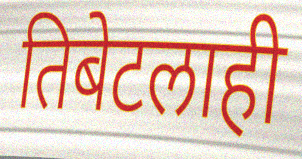
तिबेटलाही